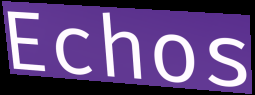
Echos